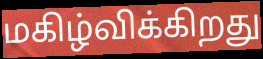
மகிழ்விக்கிறது